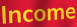
Income